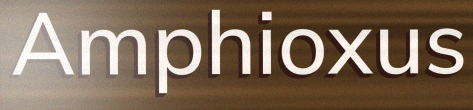
Amphioxus